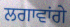
ਲਗਾਵਾਂਗੇ